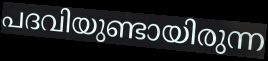
പദവിയുണ്ടായിരുന്ന